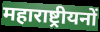
महाराष्ट्रीयनों